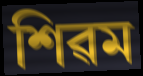
শিৱম